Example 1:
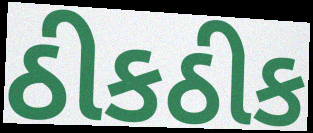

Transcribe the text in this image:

ઠીકઠીક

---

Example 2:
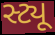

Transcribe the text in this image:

સ્ટ્યૂ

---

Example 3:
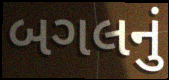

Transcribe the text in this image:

બગલનું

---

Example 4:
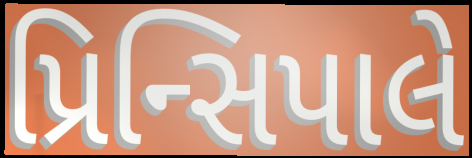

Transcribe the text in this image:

પ્રિન્સિપાલે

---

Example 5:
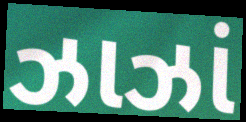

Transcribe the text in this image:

ઝાઝાં